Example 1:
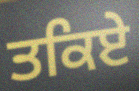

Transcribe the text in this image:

ਤਕਿਏ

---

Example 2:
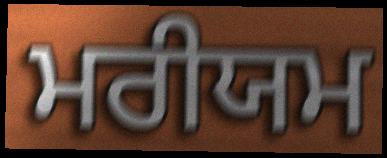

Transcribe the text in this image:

ਮਰੀਯਮ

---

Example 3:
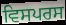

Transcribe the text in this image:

ਵਿਸਪਰਸ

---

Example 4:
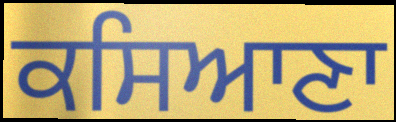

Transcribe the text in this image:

ਕਸਿਆਣਾ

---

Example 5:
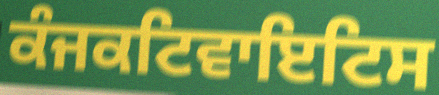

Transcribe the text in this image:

ਕੰਜਕਟਿਵਾਇਟਿਸ